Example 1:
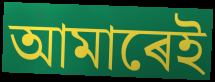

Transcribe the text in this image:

আমাৰেই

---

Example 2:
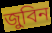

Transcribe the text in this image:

জুবিন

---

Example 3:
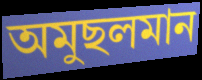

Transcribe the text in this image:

অমুছলমান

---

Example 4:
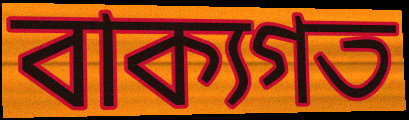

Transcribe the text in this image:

বাক্যগত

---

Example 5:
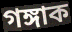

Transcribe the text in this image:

গঙ্গাক